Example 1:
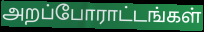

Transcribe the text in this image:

அறப்போராட்டங்கள்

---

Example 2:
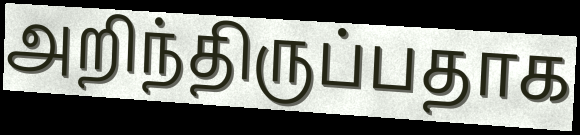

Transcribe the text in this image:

அறிந்திருப்பதாக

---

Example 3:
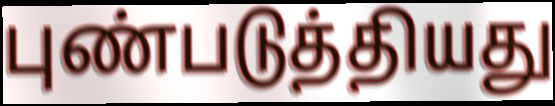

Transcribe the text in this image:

புண்படுத்தியது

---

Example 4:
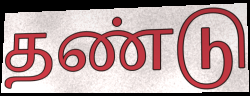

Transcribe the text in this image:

தண்டு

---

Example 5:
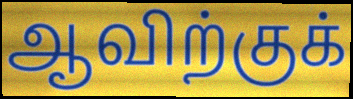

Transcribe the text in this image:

ஆவிற்குக்